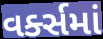
વર્ક્સમાં